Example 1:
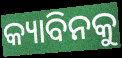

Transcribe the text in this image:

କ୍ୟାବିନକୁ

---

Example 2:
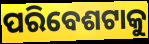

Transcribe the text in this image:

ପରିବେଶଟାକୁ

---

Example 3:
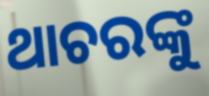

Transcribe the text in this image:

ଥାଚରଙ୍କୁ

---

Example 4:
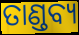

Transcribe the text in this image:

ତାଣ୍ଡବ୍ୟ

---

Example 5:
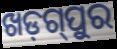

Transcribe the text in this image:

ଖଡ଼ଗ୍‌ପୁର